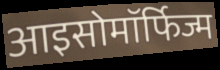
आइसोमॉर्फिज्म